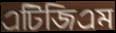
এটিজিএম